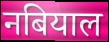
नबियाल